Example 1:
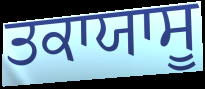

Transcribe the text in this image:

ਤਕਾਯਾਸੂ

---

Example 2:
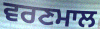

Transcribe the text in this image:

ਵਰਣਮਾਲ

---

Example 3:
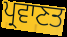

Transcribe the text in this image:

ਪ੍ਰਵਾਣਤ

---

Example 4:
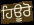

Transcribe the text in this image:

ਹਿਊਰੋ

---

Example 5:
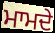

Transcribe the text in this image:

ਮਾਮਦੇ